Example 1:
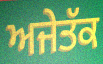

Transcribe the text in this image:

ਅਜੇਤੱਕ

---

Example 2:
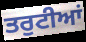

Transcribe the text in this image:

ਤਰੁਟੀਆਂ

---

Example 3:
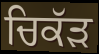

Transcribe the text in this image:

ਚਿਕੱੜ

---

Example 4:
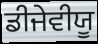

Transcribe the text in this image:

ਡੀਜੇਵੀਯੂ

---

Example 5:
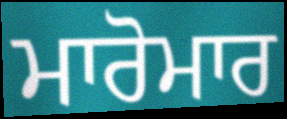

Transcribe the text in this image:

ਮਾਰੋਮਾਰ